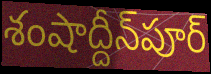
శంషాద్దీన్‌పూర్